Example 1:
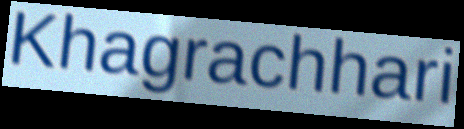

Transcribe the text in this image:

Khagrachhari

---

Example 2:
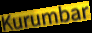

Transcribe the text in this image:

Kurumbar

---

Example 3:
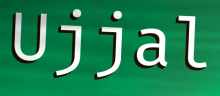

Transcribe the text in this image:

Ujjal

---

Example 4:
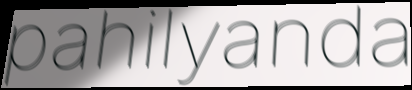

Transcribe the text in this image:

pahilyanda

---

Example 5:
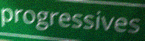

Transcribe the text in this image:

progressives